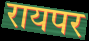
रायपर